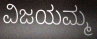
ವಿಜಯಮ್ಮ